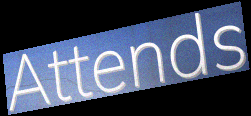
Attends